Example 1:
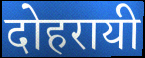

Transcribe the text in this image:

दोहरायी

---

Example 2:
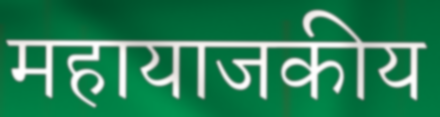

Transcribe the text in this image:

महायाजकीय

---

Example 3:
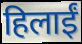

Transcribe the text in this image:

हिलाईं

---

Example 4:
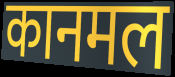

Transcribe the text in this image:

कानमल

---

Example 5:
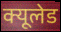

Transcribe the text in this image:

क्यूलेड